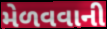
મેળવવાની